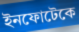
ইনফোটেকে